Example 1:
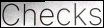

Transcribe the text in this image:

Checks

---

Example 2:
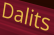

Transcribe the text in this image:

Dalits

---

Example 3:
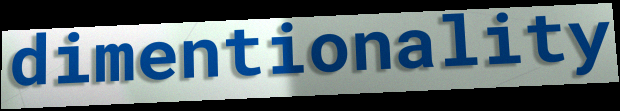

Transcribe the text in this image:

dimentionality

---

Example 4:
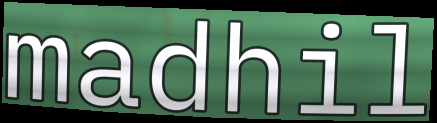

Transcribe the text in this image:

madhil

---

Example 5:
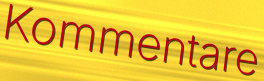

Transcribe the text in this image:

Kommentare